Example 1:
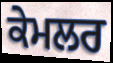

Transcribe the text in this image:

ਕੇਮਲਰ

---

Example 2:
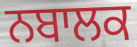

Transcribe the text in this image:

ਨਬਾਲਕ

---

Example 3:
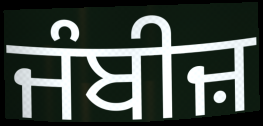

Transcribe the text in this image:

ਜੰਬੀਜ਼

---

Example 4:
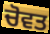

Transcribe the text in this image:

ਚੋਵਤ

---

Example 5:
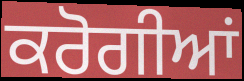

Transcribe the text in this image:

ਕਰੋਗੀਆਂ